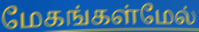
மேகங்கள்மேல்